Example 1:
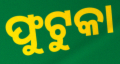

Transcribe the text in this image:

ଫୁଟୁକା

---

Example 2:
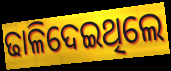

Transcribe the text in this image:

ଢାଳିଦେଇଥିଲେ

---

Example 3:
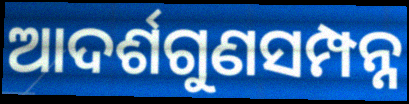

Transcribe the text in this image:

ଆଦର୍ଶଗୁଣସମ୍ପନ୍ନ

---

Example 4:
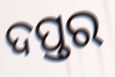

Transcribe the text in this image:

ଦପ୍ତର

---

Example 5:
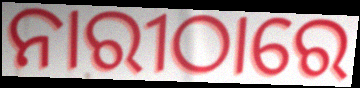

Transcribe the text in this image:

ନାରୀଠାରେ